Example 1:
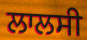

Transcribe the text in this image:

ਲਾਲਸੀ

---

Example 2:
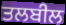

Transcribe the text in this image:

ਤਲਬੀਲ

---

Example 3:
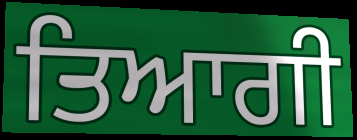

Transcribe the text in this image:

ਤਿਆਗੀ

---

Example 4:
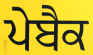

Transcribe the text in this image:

ਪੇਬੈਕ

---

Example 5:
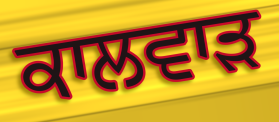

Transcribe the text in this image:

ਕਾਲਵਾੜ